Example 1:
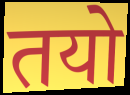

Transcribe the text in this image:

तयो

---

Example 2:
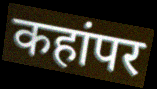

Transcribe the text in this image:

कहांपर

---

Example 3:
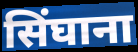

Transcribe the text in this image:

सिंघाना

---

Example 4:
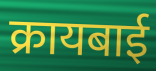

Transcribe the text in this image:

क्रायबाई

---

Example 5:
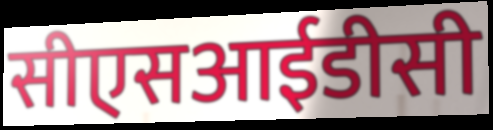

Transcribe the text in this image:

सीएसआईडीसी